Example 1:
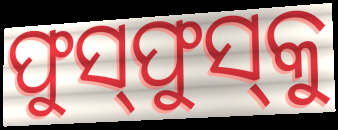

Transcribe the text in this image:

ଫୁସ୍‌ଫୁସ୍‌କୁ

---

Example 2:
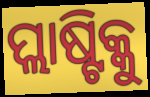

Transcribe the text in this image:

ପ୍ଲାଷ୍ଟିକ୍କୁ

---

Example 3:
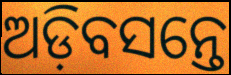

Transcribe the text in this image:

ଅଡ଼ିବସନ୍ତେ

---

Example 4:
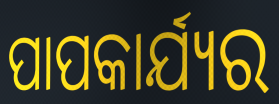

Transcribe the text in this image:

ପାପକାର୍ଯ୍ୟର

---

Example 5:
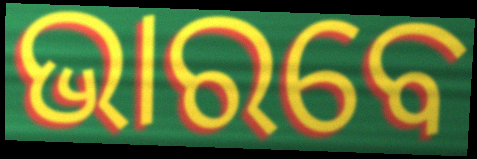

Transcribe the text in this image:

ଭାରବେ